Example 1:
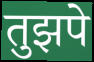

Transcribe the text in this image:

तुझपे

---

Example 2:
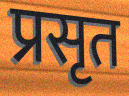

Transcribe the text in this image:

प्रसृत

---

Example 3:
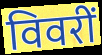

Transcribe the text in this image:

विवरीं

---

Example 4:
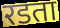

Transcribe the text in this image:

रडता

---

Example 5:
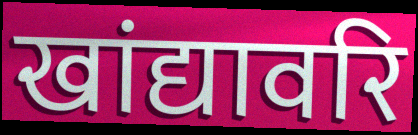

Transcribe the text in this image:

खांद्यावरि